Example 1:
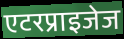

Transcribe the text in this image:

एटरप्राइजेज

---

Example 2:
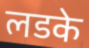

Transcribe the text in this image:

लडके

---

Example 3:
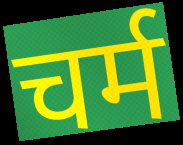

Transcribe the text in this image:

चर्म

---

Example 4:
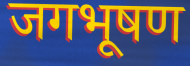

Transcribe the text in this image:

जगभूषण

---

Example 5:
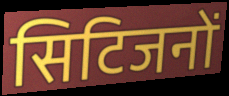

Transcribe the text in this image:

सिटिजनों